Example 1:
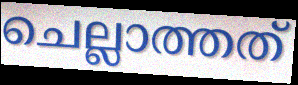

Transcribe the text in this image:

ചെല്ലാത്തത്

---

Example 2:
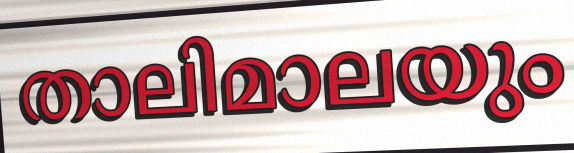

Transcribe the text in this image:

താലിമാലയും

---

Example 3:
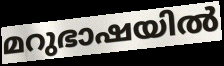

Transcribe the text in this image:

മറുഭാഷയിൽ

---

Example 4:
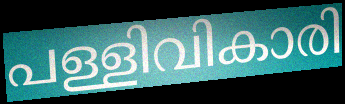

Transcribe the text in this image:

പള്ളിവികാരി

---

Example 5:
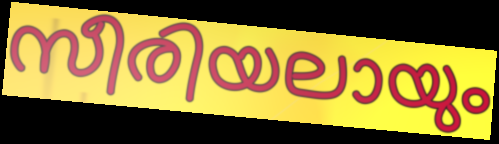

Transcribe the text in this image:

സീരിയലായും